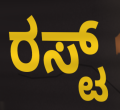
ರಸ್ಟ್